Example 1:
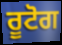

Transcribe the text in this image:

ਰੂਟੋਗ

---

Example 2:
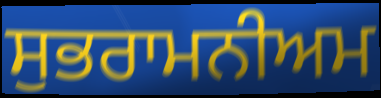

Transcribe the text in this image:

ਸੁਭਰਾਮਨੀਅਮ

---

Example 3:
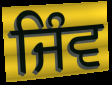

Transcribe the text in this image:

ਜਿੰਵ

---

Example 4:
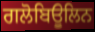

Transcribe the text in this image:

ਗਲੋਬਿਊਲਿਨ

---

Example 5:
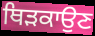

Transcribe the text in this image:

ਥਿੜਕਾਉਣ